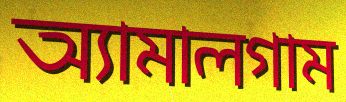
অ্যামালগাম